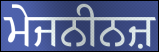
ਮੇਜਨੀਨਜ਼